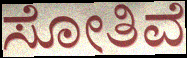
ಸೋತಿವೆ